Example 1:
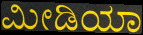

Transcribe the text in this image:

ಮೀಡಿಯಾ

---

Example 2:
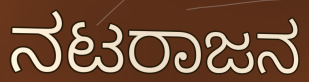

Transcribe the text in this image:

ನಟರಾಜನ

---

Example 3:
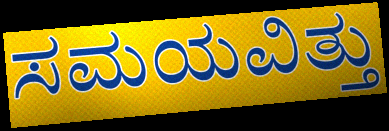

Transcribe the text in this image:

ಸಮಯವಿತ್ತು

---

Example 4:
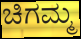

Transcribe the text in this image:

ಚಿಗಮ್ಮ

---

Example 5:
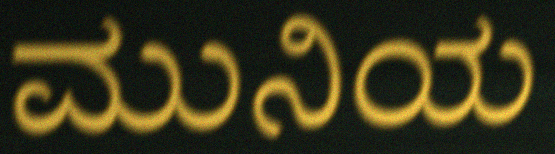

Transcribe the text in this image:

ಮುನಿಯ